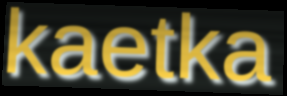
kaetka